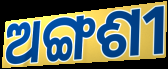
ଅଙ୍ଗଶୀ